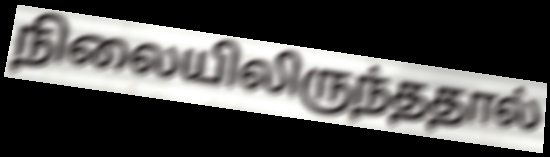
நிலையிலிருந்ததால்